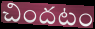
చిందటం